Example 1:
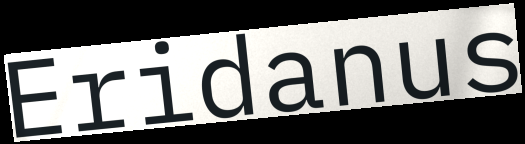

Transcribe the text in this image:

Eridanus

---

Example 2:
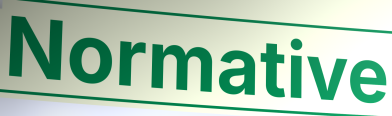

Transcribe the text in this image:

Normative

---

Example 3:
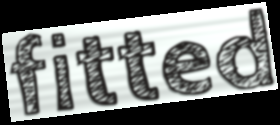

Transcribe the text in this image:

fitted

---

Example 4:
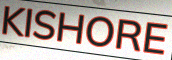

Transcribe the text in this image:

KISHORE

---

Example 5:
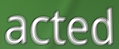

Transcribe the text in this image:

acted